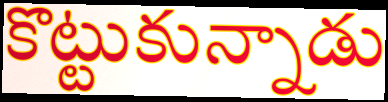
కొట్టుకున్నాడు